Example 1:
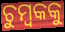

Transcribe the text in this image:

ଚୁମ୍ୱକକୁ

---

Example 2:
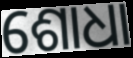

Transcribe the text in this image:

ଶୋଧା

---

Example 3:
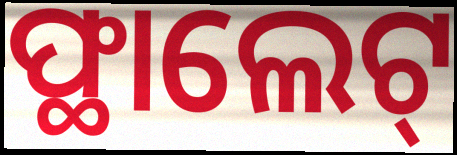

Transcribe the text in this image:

ଫ୍ଥାଲେଟ୍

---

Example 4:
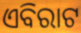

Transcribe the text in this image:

ଏବିରାଟ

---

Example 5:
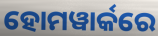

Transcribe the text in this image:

ହୋମୱାର୍କରେ